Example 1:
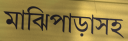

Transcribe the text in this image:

মাঝিপাড়াসহ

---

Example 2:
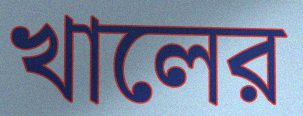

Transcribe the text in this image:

খালের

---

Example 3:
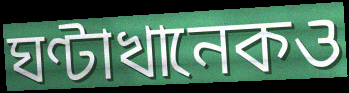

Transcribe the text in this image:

ঘণ্টাখানেকও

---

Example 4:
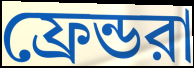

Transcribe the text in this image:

ফ্রেন্ডরা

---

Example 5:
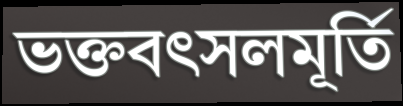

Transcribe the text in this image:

ভক্তবৎসলমূর্তি